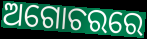
ଅଗୋଚରରେ